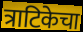
त्राटिकेचा